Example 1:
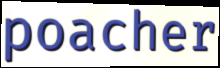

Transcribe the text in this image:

poacher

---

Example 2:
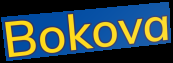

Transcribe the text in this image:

Bokova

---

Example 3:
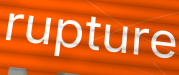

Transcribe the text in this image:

rupture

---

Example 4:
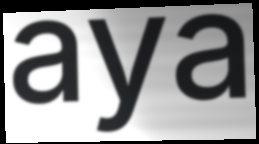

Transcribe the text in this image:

aya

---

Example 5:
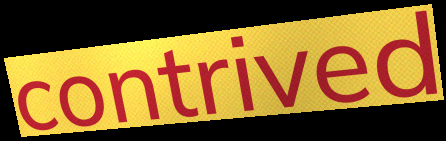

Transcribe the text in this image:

contrived